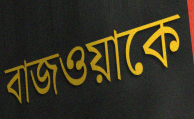
বাজওয়াকে